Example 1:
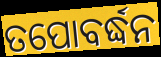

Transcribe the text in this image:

ତପୋବର୍ଦ୍ଧନ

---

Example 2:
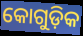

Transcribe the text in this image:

କୋଗୁଡ଼ିକ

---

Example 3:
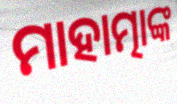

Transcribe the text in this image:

ମାହାତ୍ମାଙ୍କ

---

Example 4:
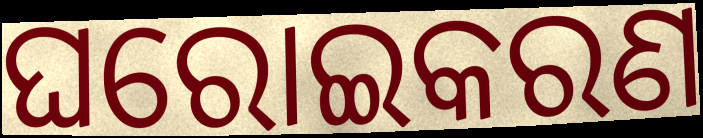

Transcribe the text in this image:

ଘରୋଇକରଣ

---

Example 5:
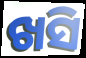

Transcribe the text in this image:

ଖସି